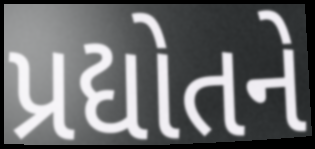
પ્રદ્યોતને